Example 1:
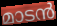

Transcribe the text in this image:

മാടൻ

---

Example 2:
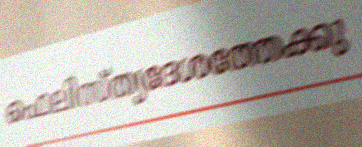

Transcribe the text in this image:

ഫെലിസ്ത്യദേശത്തേക്കു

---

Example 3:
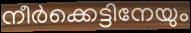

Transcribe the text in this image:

നീർക്കെട്ടിനേയും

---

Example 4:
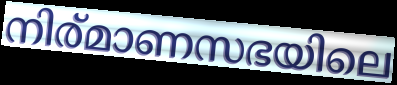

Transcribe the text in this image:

നിര്മാണസഭയിലെ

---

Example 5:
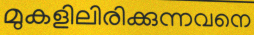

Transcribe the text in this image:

മുകളിലിരിക്കുന്നവനെ